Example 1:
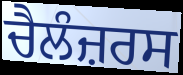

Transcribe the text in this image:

ਚੈਲੰਜ਼ਰਸ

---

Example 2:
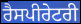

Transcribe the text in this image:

ਰੈਸਪੀਰੇਟਰੀ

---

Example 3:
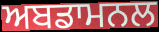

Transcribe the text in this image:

ਅਬਡਾਮਨਲ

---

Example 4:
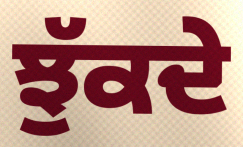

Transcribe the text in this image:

ਝੁੱਕਦੇ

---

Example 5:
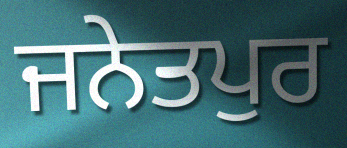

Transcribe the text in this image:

ਜਨੇਤਪੁਰ